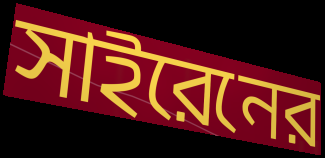
সাইরেনের